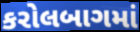
કરોલબાગમાં